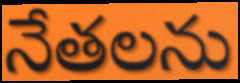
నేతలను